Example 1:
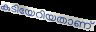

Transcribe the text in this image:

കുടിയേറിയതാണ്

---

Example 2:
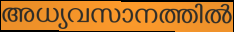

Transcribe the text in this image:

അധ്യവസാനത്തിൽ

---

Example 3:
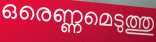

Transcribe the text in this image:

ഒരെണ്ണമെടുത്തു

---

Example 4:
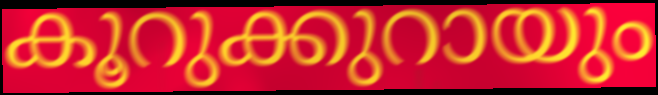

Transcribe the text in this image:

കൂറുക്കുറായും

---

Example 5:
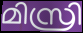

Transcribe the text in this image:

മിസ്രി